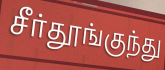
சீர்தூங்குந்து